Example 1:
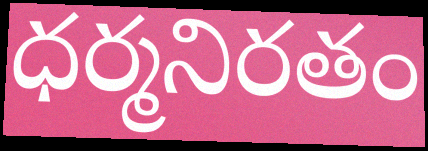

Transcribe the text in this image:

ధర్మనిరతం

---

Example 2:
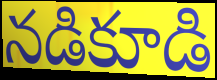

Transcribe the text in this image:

నడికూడి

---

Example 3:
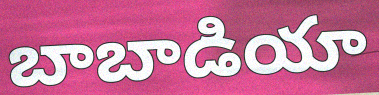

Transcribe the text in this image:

బాబాడియా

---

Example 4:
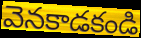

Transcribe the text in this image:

వెనకాడకండి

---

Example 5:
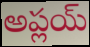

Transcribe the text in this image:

అప్లయ్